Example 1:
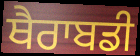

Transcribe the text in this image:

ਥੈਰਾਬਡੀ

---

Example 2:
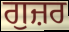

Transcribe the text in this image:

ਗੁਜ਼ਰ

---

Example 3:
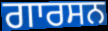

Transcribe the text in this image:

ਗਾਰਸਨ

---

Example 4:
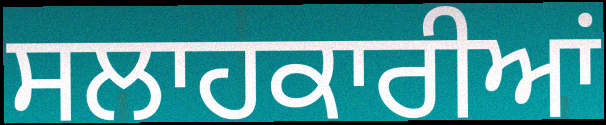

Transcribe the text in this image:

ਸਲਾਹਕਾਰੀਆਂ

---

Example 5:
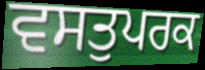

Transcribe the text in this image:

ਵਸਤੁਪਰਕ